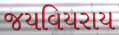
જયવિયરાય